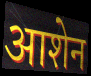
आशेन